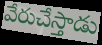
వేరుచేస్తాడు